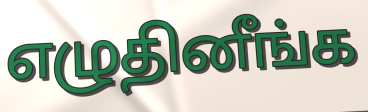
எழுதினீங்க